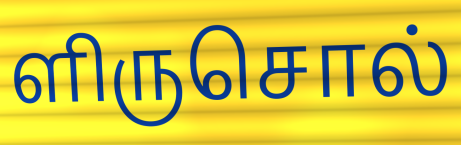
ளிருசொல்